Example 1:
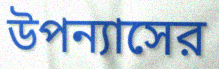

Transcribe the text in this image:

উপন্যাসের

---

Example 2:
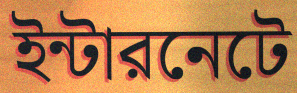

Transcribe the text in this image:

ইন্টারনেটে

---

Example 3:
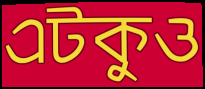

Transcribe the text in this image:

এটকুও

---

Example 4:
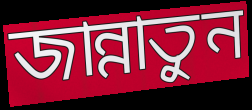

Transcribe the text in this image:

জান্নাতুন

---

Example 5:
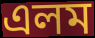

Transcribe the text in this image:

এলম